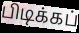
பிடிக்கப்